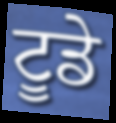
ਟੂਡੇ